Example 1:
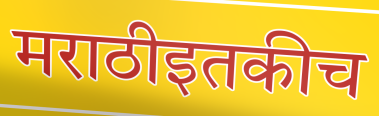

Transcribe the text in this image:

मराठीइतकीच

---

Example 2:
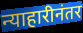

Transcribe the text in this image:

न्याहारीनंतर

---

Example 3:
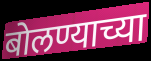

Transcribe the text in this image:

बोलण्याच्या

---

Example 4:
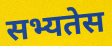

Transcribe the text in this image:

सभ्यतेस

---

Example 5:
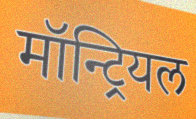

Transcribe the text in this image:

मॉन्ट्रियल